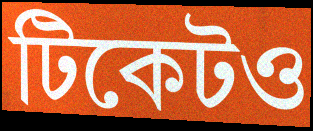
টিকেটও